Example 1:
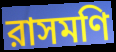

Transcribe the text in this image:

রাসমণি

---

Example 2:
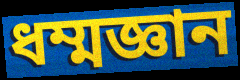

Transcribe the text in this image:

ধম্মজ্ঞান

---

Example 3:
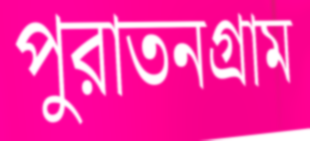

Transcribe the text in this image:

পুরাতনগ্রাম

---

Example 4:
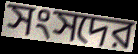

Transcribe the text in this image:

সংসদের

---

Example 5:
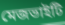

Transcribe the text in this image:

মেজভাইটি